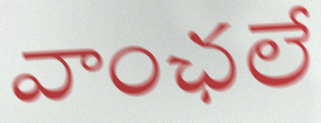
వాంఛలే